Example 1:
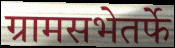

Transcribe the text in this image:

ग्रामसभेतर्फे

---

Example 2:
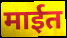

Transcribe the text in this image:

माईत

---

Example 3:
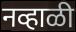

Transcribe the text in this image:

नव्हाळी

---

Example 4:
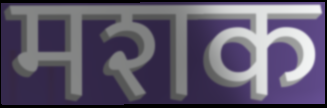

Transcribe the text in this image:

मशक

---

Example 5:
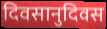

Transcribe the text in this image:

दिवसानुदिवस